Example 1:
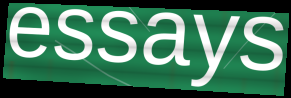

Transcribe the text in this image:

essays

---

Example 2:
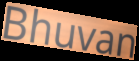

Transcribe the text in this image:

Bhuvan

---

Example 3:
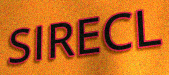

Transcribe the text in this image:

SIRECL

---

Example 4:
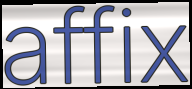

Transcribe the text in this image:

affix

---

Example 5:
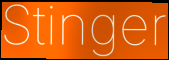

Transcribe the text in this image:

Stinger